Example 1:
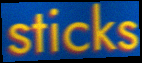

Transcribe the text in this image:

sticks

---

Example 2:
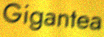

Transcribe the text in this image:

Gigantea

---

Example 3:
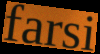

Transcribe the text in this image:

farsi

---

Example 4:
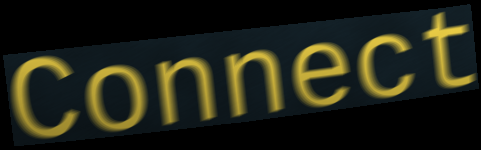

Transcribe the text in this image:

Connect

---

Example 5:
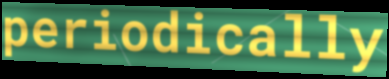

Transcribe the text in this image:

periodically